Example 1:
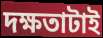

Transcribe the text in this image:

দক্ষতাটাই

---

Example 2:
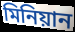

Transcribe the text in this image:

মিনিয়ান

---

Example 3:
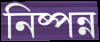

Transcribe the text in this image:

নিষ্পন্ন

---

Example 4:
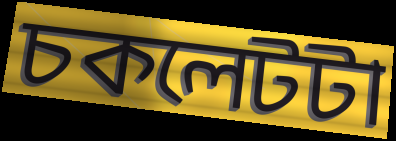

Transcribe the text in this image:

চকলেটটা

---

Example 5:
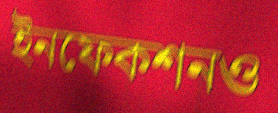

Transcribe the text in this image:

ইনফেকশনও